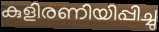
കുളിരണിയിപ്പിച്ചു